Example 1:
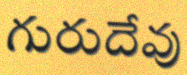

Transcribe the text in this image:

గురుదేవు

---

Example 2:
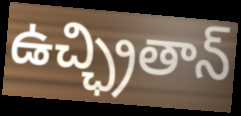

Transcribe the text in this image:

ఉచ్ఛ్రితాన్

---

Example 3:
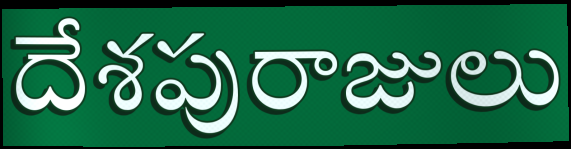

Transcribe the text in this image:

దేశపురాజులు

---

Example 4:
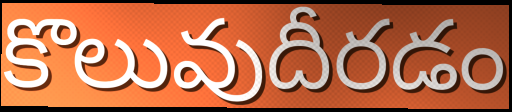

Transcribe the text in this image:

కొలువుదీరడం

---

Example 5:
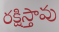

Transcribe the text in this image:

రక్షిస్తావు